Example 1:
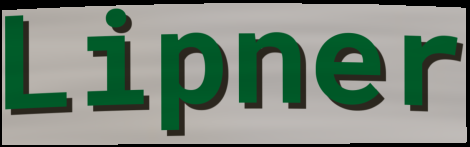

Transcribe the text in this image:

Lipner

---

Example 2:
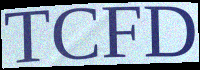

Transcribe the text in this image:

TCFD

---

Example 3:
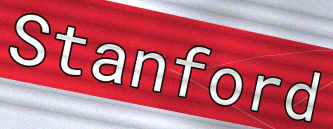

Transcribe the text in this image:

Stanford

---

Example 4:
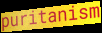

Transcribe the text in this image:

puritanism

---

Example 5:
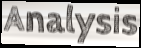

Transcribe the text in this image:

Analysis